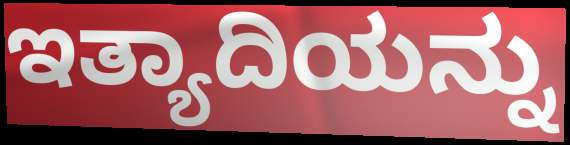
ಇತ್ಯಾದಿಯನ್ನು